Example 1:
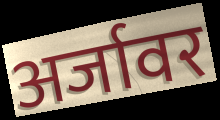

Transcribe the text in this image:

अर्जावर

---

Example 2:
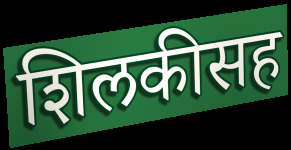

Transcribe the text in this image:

शिलकीसह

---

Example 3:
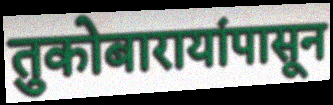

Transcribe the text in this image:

तुकोबारायांपासून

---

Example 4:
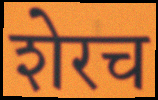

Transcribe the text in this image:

शेरच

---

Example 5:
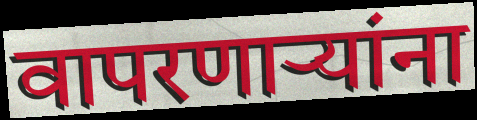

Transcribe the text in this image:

वापरणाऱ्यांना